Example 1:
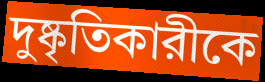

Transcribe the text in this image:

দুষ্কৃতিকারীকে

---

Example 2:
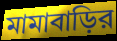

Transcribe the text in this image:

মামাবাড়ির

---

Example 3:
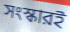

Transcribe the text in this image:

সংস্কারই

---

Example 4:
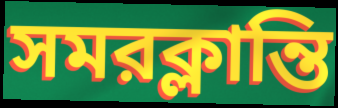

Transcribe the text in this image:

সমরক্লান্তি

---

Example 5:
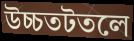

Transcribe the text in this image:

উচ্চতটতলে